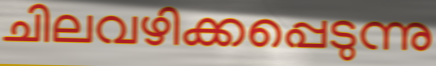
ചിലവഴിക്കപ്പെടുന്നു